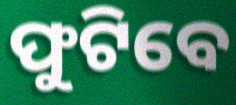
ଫୁଟିବେ